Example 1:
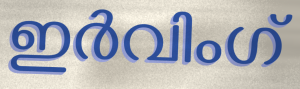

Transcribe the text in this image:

ഇർവിംഗ്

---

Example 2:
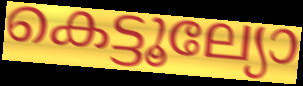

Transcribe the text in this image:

കെട്ടൂല്യോ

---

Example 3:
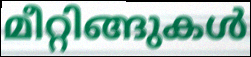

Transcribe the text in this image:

മീറ്റിങ്ങുകൾ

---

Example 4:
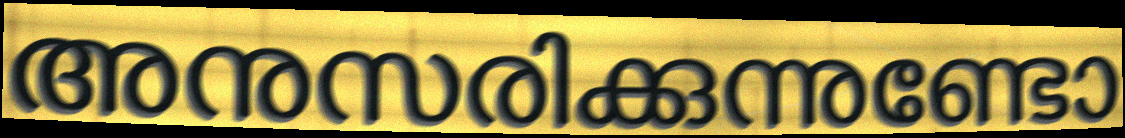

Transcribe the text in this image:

അനുസരിക്കുന്നുണ്ടോ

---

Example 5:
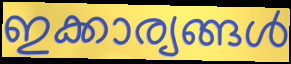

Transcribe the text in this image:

ഇക്കാര്യങ്ങൾ